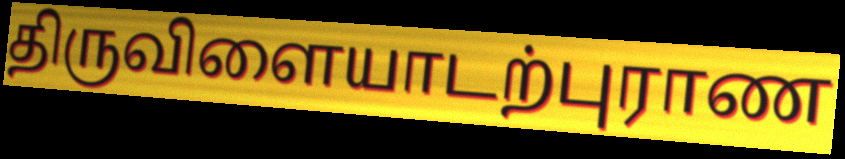
திருவிளையாடற்புராண